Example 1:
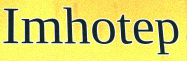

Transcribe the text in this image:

Imhotep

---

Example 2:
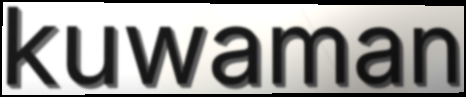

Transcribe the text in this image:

kuwaman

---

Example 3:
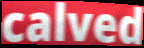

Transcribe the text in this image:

calved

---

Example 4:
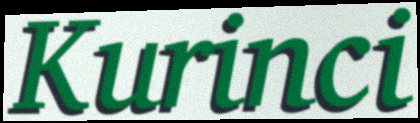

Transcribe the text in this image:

Kurinci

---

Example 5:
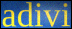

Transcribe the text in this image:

adivi